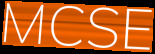
MCSE